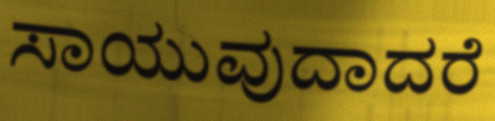
ಸಾಯುವುದಾದರೆ